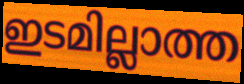
ഇടമില്ലാത്ത